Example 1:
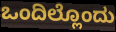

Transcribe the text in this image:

ಒಂದಿಲ್ಲೊಂದು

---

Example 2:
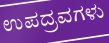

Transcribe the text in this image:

ಉಪದ್ರವಗಳು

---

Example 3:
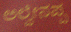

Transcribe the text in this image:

ಅಲ್ವೇನಪ್ಪ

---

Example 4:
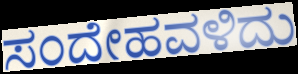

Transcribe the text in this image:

ಸಂದೇಹವಳಿದು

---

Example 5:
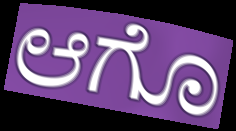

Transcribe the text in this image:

ಆಗೊ